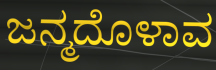
ಜನ್ಮದೊಳಾವ